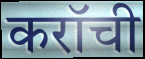
करॉची